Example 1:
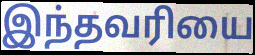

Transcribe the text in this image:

இந்தவரியை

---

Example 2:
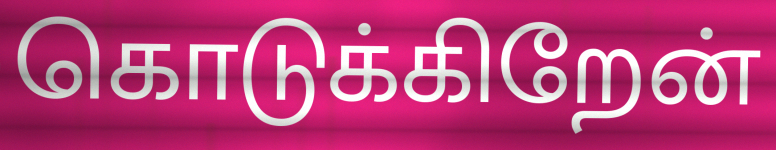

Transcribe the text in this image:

கொடுக்கிறேன்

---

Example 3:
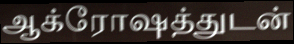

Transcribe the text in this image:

ஆக்ரோஷத்துடன்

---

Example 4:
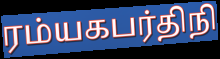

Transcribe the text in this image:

ரம்யகபர்திநி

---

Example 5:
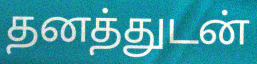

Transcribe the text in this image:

தனத்துடன்